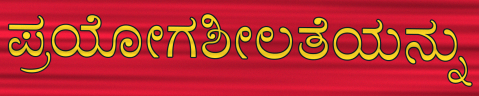
ಪ್ರಯೋಗಶೀಲತೆಯನ್ನು